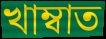
খাম্বাত